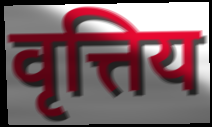
वृत्तिय